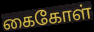
கைகோள்